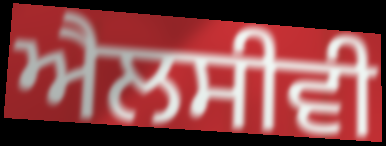
ਐਲਸੀਵੀ